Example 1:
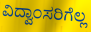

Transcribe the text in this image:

ವಿದ್ವಾಂಸರಿಗೆಲ್ಲ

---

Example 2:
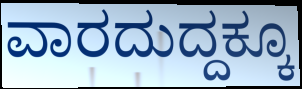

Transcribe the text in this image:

ವಾರದುದ್ದಕ್ಕೂ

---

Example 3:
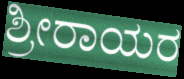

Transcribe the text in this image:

ಶ್ರೀರಾಯರ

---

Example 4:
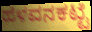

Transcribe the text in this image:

ಹೆಳವನಕಟ್ಟೆ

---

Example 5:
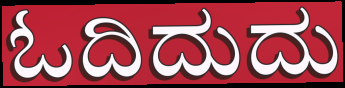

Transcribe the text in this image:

ಓದಿದುದು